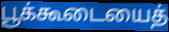
பூக்கூடையைத்